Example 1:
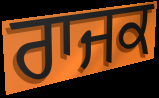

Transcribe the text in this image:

ਰਾਜਕ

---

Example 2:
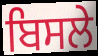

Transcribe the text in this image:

ਬਿਸਲੇ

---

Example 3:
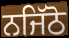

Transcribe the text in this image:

ਨਜਿੱਠੋ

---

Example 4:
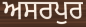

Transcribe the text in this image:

ਅਸਰਪੁਰ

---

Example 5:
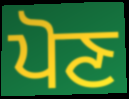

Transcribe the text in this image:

ਪੋਣ